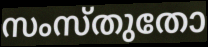
സംസ്തുതോ